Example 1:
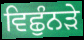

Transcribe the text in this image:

ਵਿਛੁੰਨੜੇ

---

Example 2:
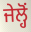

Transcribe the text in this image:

ਜੇਲ੍ਹੋਂ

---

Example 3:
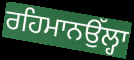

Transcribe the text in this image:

ਰਹਿਮਾਨਉੱਲ੍ਹਾ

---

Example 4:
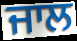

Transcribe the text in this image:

ਜਾਲ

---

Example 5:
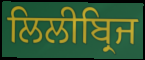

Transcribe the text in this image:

ਲਿਲੀਬ੍ਰਿਜ